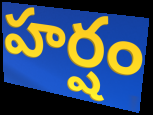
హర్షం